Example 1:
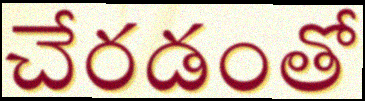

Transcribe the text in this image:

చేరడంతో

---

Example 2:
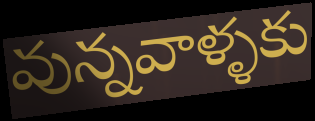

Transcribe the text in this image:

వున్నవాళ్ళకు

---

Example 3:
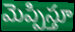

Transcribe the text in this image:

మెప్పిస్తూ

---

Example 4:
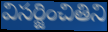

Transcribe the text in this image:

విసర్జించితిని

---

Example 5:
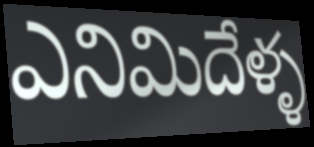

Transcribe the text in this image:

ఎనిమిదేళ్ళ